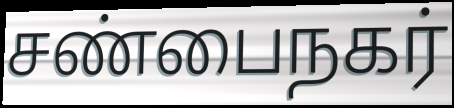
சண்பைநகர்